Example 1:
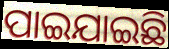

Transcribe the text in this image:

ପାଇଯାଇଛି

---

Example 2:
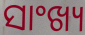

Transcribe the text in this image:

ସାଂଖ୍ଯ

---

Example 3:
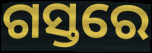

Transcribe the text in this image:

ଗସ୍ତରେ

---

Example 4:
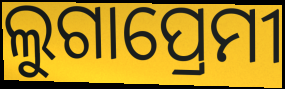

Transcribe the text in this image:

ଲୁଗାପ୍ରେମୀ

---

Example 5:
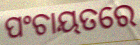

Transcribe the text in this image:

ପଂଚାୟତରେ